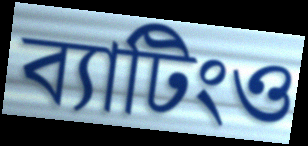
ব্যাটিংও